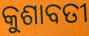
କୁଶାବତୀ